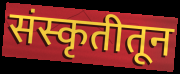
संस्कृतीतून